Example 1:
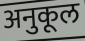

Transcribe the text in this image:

अनुकूल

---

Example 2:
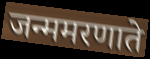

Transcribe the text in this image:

जन्ममरणाते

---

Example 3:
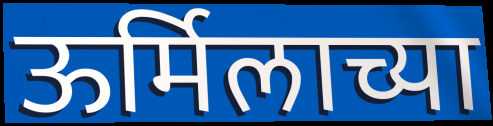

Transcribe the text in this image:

ऊर्मिलाच्या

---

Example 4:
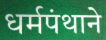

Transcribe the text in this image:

धर्मपंथाने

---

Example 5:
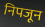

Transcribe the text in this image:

निपजून